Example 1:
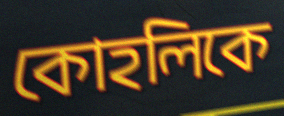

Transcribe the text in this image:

কোহলিকে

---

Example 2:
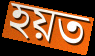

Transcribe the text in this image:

হয়ত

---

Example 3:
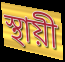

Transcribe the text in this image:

স্থায়ী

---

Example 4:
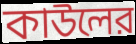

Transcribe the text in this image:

কাউলের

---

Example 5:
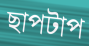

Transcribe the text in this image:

ছাপটাপ